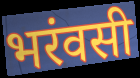
भरंवसी